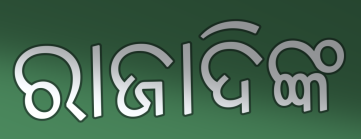
ରାଜାଦିଙ୍କ